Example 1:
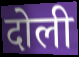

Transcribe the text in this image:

दोली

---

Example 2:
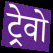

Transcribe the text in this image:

ट्रेवो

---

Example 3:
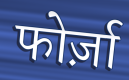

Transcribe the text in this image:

फोर्ज़ा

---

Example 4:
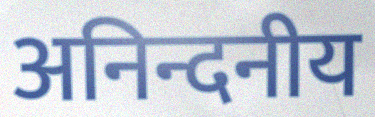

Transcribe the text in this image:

अनिन्दनीय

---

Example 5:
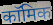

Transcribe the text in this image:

कॉमिक